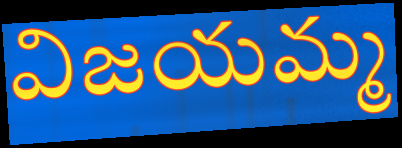
విజయమ్మ